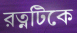
রত্নটিকে